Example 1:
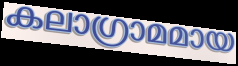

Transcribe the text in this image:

കലാഗ്രാമമായ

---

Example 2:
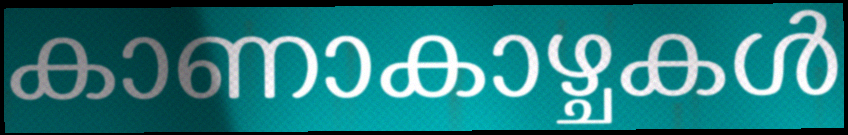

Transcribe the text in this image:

കാണാകാഴ്ചകൾ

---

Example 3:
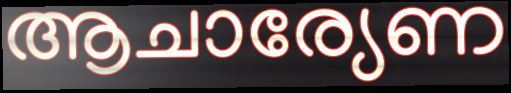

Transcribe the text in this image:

ആചാര്യേണ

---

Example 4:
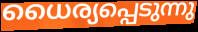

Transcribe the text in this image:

ധൈര്യപ്പെടുന്നു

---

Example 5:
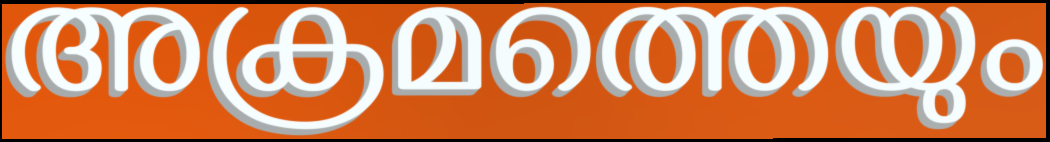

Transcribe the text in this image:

അക്രമത്തെയും